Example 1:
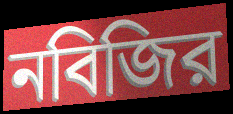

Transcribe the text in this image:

নবিজির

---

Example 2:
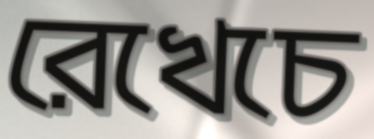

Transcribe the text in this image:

রেখেচে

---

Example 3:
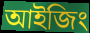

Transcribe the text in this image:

আইজিং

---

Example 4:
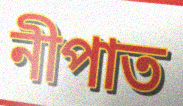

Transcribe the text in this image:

নীপাত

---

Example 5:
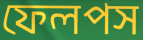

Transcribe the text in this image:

ফেলপস